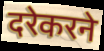
दरेकरने